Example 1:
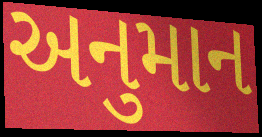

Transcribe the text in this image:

અનુમાન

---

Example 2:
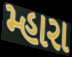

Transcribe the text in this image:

મ્હારા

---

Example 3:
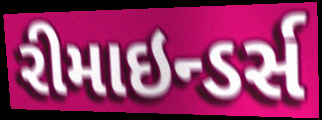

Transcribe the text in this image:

રીમાઇન્ડર્સ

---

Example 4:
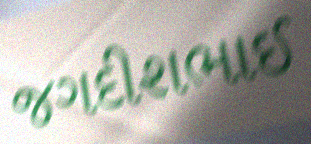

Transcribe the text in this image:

જગદીશભાઈ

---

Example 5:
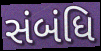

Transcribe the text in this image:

સંબંધિ